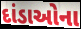
દાંડાઓના